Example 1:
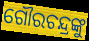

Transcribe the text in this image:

ଗୌରଚନ୍ଦ୍ରଙ୍କୁ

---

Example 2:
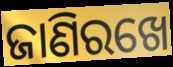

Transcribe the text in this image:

ଜାଣିରଖେ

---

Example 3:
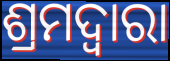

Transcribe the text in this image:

ଶ୍ରମଦ୍ଵାରା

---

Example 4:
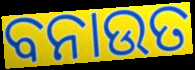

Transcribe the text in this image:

ବନାଉତ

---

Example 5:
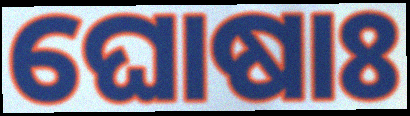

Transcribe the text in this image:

ଘୋଷାଃ